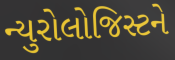
ન્યુરોલોજિસ્ટને